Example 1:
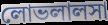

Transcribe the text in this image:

লোভলালসা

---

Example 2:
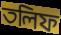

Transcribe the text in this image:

তলিফ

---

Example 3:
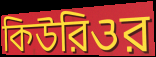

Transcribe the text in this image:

কিউরিওর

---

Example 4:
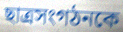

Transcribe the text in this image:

ছাত্রসংগঠনকে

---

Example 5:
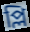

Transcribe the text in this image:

প্লি